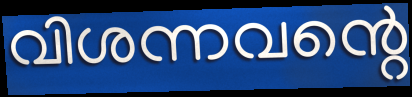
വിശന്നവന്റെ